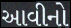
આવીનો